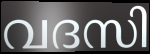
വദസി